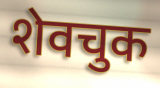
शेवचुक